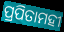
ପ୍ରପିତାମହୀ